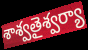
శాశ్వతైశ్వర్యా